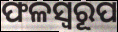
ଫଳସ୍ୱରୂପ